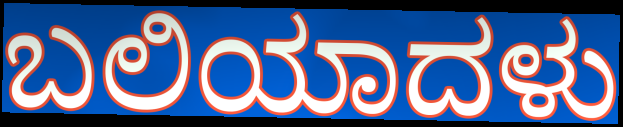
ಬಲಿಯಾದಳು